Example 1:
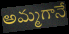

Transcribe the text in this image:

అమ్మగానే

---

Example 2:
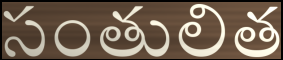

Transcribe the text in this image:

సంతులిత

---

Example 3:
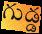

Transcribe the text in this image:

గుడ్డ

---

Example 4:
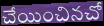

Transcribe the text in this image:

చేయించినచో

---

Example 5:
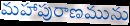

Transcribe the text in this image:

మహాపురాణమును